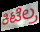
ಕಿಟೆಲ್ರ